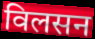
विलसन